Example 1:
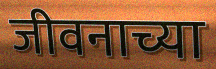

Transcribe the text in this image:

जीवनाच्या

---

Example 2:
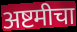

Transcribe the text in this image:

अष्टमीचा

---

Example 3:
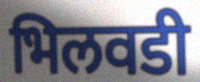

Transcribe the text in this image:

भिलवडी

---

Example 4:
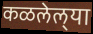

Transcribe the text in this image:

कळलेल्या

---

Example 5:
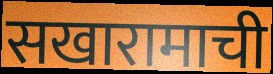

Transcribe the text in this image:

सखारामाची